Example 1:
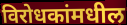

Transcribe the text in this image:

विरोधकांमधील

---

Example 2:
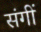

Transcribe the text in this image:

संगीं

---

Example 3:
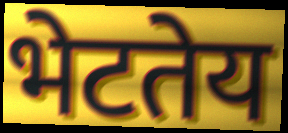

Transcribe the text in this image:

भेटतेय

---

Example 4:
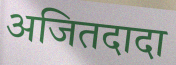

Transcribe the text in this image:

अजितदादा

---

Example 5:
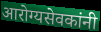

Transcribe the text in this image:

आरोग्यसेवकांनी